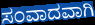
ಸಂವಾದವಾಗಿ